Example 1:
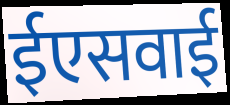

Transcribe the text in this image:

ईएसवाई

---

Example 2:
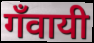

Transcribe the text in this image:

गँवायी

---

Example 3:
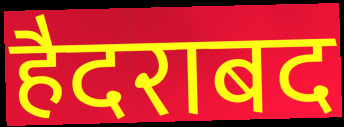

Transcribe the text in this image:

हैदराबद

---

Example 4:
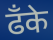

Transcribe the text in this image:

ढँके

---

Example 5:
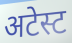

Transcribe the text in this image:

अटेस्ट